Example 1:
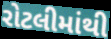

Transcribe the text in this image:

રોટલીમાંથી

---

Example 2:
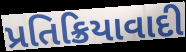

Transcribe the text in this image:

પ્રતિક્રિયાવાદી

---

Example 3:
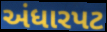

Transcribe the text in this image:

અંધારપટ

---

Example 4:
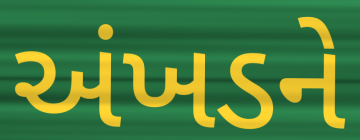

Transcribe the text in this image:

અંખડને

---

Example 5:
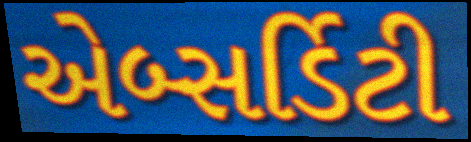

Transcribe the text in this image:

એબ્સર્ડિટી